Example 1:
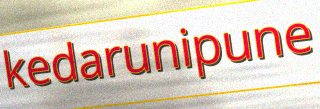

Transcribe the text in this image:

kedarunipune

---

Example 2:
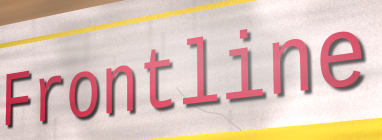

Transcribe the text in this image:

Frontline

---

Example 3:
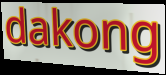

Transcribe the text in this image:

dakong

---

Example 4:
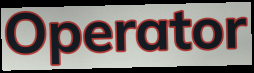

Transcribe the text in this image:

Operator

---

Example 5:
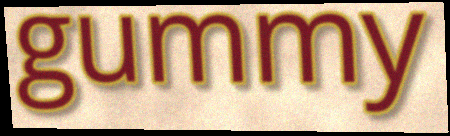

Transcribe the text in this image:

gummy